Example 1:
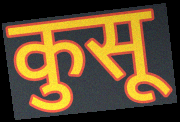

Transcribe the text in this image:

कुसू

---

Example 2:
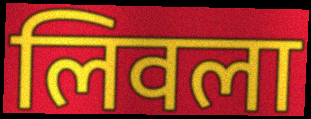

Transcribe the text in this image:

लिवला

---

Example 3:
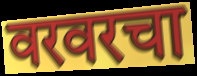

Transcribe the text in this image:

वरवरचा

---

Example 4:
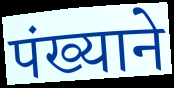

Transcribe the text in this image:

पंख्याने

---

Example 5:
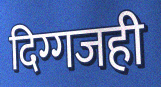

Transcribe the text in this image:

दिग्गजही